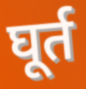
घूर्त